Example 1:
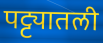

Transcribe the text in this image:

पट्ट्यातली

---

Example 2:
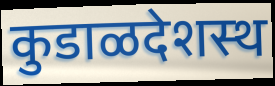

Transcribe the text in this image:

कुडाळदेशस्थ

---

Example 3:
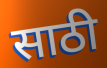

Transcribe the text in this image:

साठी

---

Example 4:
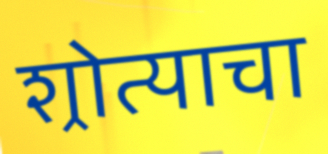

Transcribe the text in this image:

श्रोत्याचा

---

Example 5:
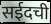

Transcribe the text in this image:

सईदची